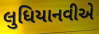
લુધિયાનવીએ